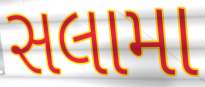
સલામા